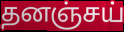
தனஞ்சய்